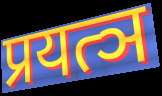
प्रयत्ञ